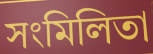
সংমিলিতা